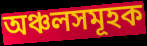
অঞ্চলসমূহক